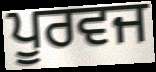
ਪੂਰਵਜ